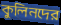
কুলিনদের